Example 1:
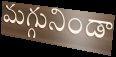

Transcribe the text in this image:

మగ్గునిండా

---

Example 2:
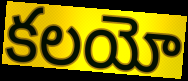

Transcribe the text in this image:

కలయో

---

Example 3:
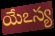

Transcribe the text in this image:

యేఽస్య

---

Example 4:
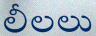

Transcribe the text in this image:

లీలలు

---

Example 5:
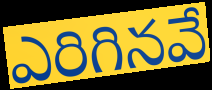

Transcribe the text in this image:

ఎరిగినవే